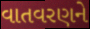
વાતવરણને